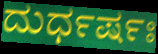
ದುರ್ಧರ್ಷಃ